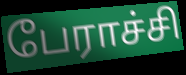
பேராச்சி